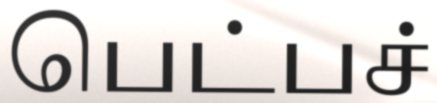
பெட்பச்